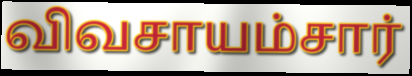
விவசாயம்சார்